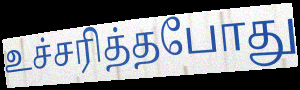
உச்சரித்தபோது